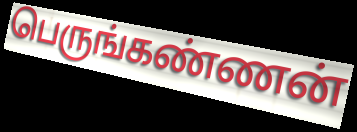
பெருங்கண்ணன்